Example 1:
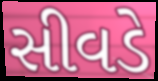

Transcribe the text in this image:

સીવડે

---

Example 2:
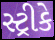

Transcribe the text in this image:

સ્ટ્રીકે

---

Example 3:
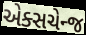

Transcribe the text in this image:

એક્સચેન્જ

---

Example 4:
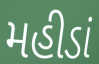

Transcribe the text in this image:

મહીડાં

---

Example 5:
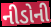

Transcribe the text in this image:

નીડોની